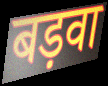
बड़वा